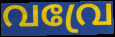
വവ്രേ